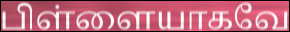
பிள்ளையாகவே